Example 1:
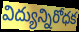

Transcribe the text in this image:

విద్యున్నిరోధక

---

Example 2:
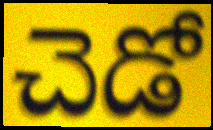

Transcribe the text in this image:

చెడో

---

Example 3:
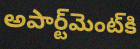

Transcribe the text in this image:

అపార్ట్‌మెంట్‌కి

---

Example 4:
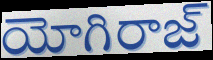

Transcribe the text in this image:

యోగిరాజ్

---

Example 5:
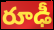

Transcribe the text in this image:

రూఢీ